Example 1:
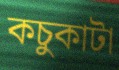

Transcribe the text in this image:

কচুকাটা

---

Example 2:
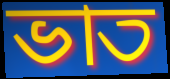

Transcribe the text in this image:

ভাত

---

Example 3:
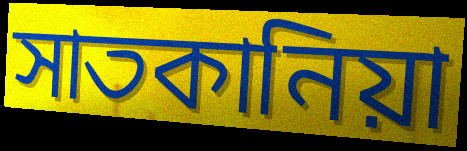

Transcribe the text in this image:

সাতকানিয়া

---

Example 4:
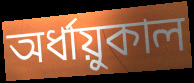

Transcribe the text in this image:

অর্ধায়ুকাল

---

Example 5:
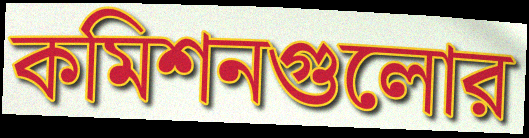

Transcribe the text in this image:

কমিশনগুলোর